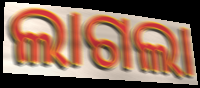
ଲାଗଲା